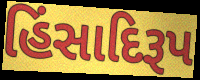
હિંસાદિરૂપ